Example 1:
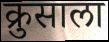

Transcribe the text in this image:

क्रुसाला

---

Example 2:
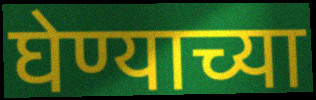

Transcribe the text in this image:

घेण्याच्या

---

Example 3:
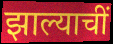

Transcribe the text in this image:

झाल्याचीं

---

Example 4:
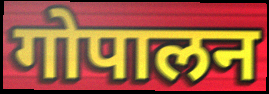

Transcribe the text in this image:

गोपालन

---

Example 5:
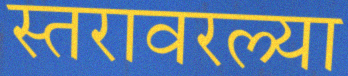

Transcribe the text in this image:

स्तरावरल्या